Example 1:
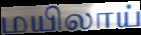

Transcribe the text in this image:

மயிலாய்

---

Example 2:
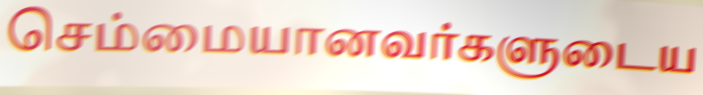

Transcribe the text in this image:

செம்மையானவர்களுடைய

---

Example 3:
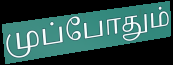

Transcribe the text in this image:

முப்போதும்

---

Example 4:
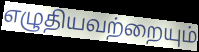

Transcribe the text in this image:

எழுதியவற்றையும்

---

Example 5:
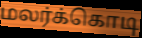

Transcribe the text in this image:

மலர்க்கொடி